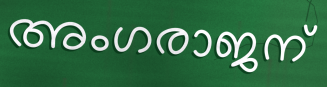
അംഗരാജന്